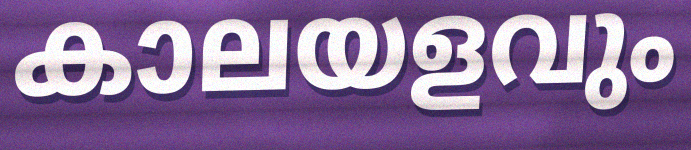
കാലയളവും